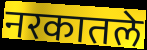
नरकातले